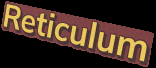
Reticulum